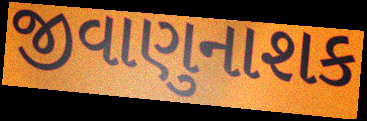
જીવાણુનાશક